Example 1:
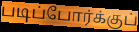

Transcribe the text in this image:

படிப்போர்க்குப்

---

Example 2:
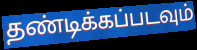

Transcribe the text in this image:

தண்டிக்கப்படவும்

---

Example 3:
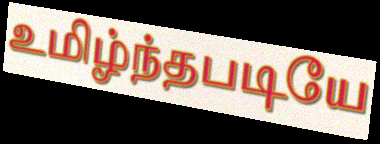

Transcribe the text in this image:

உமிழ்ந்தபடியே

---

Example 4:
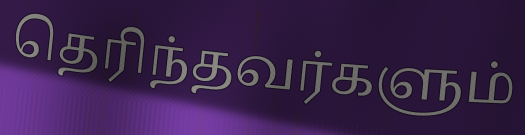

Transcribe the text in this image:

தெரிந்தவர்களும்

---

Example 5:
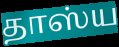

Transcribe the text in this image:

தாஸ்ய